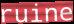
ruine